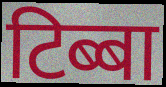
टिब्बा